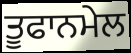
ਤੂਫਾਨਮੇਲ